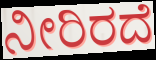
ನೀರಿರದೆ